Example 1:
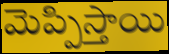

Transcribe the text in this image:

మెప్పిస్తాయి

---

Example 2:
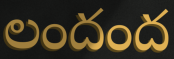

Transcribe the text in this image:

లందంద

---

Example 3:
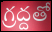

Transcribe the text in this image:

గ్రద్దతో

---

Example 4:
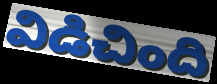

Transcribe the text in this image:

విడిచింది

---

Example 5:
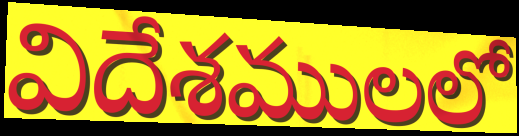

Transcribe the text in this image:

విదేశములలో